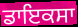
ਡਾਇਕਸਾ